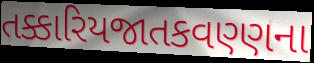
તક્કારિયજાતકવણ્ણના